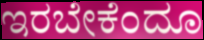
ಇರಬೇಕೆಂದೂ